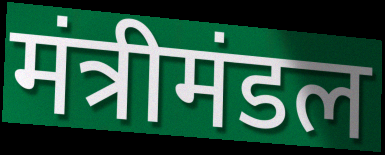
मंत्रीमंडल